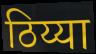
ठिय्या